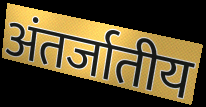
अंतर्जातीय